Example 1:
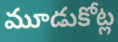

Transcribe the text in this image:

మూడుకోట్ల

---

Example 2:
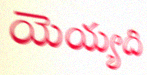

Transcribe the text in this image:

యెయ్యది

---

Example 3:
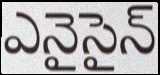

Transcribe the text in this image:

ఎనైసైన్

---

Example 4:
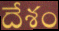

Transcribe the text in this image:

దేశం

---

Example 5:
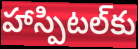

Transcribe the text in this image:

హాస్పిటల్‌కు